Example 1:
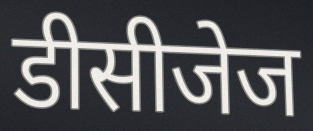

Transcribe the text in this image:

डीसीजेज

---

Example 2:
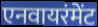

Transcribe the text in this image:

एनवायरंमेंट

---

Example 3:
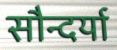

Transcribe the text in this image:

सौन्दर्या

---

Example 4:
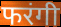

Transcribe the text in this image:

फरंगी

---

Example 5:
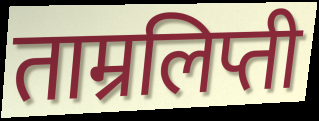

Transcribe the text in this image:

ताम्रलिप्ती